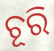
ଚୂରି